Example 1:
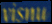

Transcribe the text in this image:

visnu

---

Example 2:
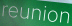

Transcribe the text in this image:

reunion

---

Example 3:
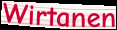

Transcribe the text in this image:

Wirtanen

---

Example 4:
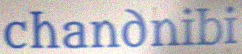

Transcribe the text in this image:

chandnibi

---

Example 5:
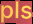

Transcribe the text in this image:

pls